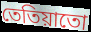
তেতিয়াতো